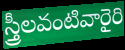
స్త్రీలవంటివారైరి